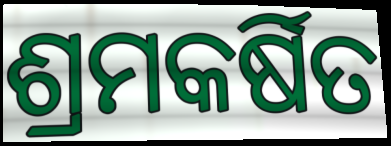
ଶ୍ରମକର୍ଷିତ